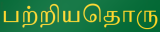
பற்றியதொரு